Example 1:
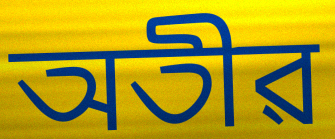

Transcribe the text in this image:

অতীৱ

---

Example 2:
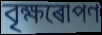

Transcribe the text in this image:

বৃক্ষৰোপণ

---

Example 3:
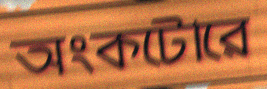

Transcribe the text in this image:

অংকটোৱে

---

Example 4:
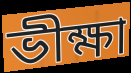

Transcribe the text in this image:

ভীক্ষা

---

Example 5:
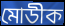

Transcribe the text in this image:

মোডীক